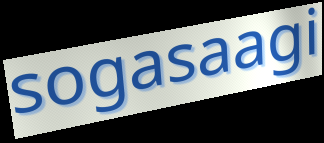
sogasaagi